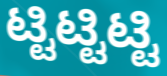
ಟ್ಟಿಟ್ಟಿಟ್ಟಿ